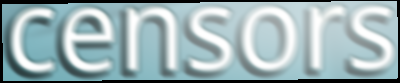
censors